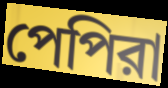
পেপিরা